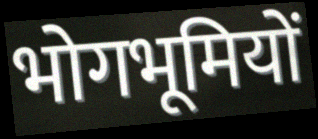
भोगभूमियों